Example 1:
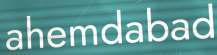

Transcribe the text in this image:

ahemdabad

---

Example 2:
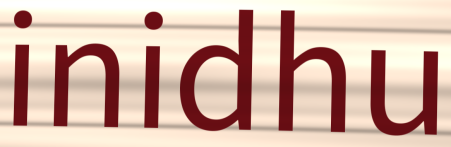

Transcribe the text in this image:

inidhu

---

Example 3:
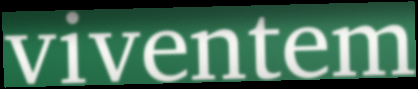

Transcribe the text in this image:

viventem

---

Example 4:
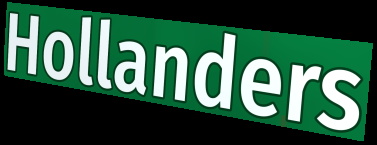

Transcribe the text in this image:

Hollanders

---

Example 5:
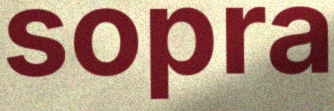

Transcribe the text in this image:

sopra